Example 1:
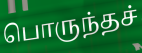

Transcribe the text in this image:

பொருந்தச்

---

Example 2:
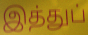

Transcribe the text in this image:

இத்துப்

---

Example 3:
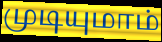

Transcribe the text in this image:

முடியுமாம்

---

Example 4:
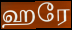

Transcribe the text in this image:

ஹரே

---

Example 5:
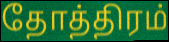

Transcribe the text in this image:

தோத்திரம்